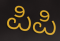
ಪಿಪಿ